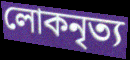
লোকনৃত্য